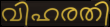
വിഹരതി